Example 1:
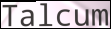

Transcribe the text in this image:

Talcum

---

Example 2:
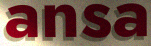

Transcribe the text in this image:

ansa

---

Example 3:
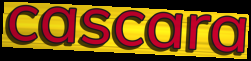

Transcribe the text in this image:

cascara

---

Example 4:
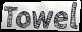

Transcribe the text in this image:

Towel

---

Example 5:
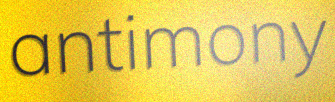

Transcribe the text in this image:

antimony